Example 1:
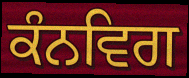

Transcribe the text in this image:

ਕੰਨਵਿਗ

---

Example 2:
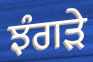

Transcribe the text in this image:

ਝੰਗੜੇ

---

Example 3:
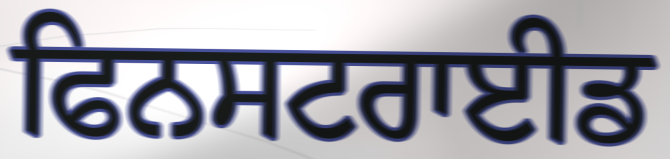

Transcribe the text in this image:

ਫਿਨਸਟਰਾਈਡ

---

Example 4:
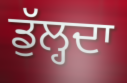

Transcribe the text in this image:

ਡੁੱਲ੍ਹਦਾ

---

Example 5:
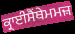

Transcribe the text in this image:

ਕ੍ਰਾਈਸੈਂਥੇਮਮਜ਼